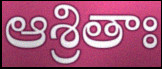
ఆశ్రితాః